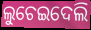
ଲୁଚେଇଦେଲି